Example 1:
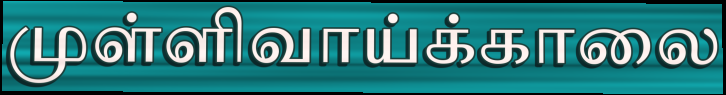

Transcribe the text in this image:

முள்ளிவாய்க்காலை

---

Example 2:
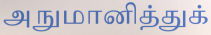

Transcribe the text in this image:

அநுமானித்துக்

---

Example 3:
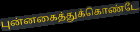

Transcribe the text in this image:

புன்னகைத்துக்கொண்டே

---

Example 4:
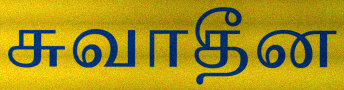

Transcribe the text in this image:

சுவாதீன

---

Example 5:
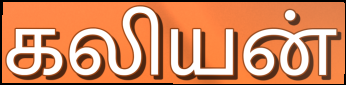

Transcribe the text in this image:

கலியன்